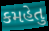
કમહેતુ